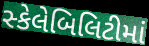
સ્કેલેબિલિટીમાં